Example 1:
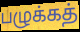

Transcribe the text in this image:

பழுக்கத்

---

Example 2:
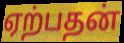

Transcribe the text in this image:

ஏற்பதன்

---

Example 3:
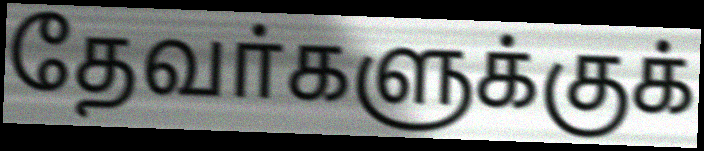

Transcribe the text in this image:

தேவர்களுக்குக்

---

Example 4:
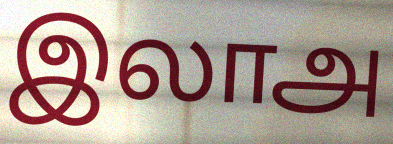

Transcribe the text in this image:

இலாஅ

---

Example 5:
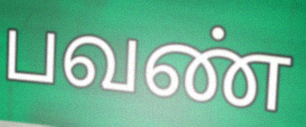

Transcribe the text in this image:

பவண்